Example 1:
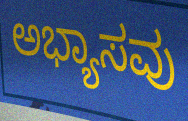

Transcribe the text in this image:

ಅಭ್ಯಾಸವು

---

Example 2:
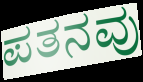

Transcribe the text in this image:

ಪತನವು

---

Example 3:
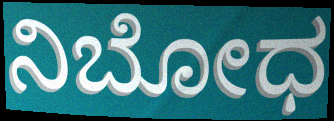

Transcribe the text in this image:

ನಿಬೋಧ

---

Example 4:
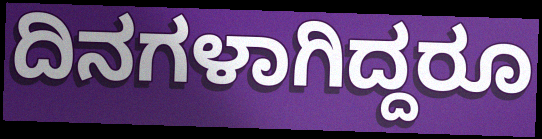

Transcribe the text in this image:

ದಿನಗಳಾಗಿದ್ದರೂ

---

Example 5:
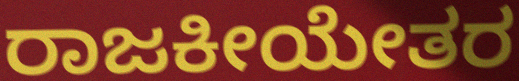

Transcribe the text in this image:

ರಾಜಕೀಯೇತರ